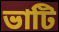
ভাটি